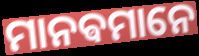
ମାନଵମାନେ